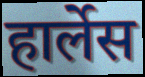
हार्लेस